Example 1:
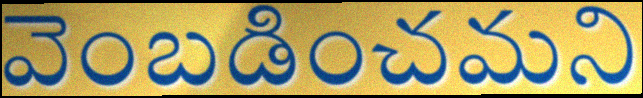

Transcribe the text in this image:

వెంబడించమని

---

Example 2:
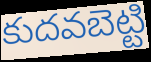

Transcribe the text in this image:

కుదవబెట్టి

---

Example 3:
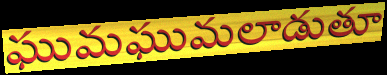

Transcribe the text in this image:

ఘుమఘుమలాడుతూ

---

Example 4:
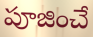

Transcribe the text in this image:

పూజించే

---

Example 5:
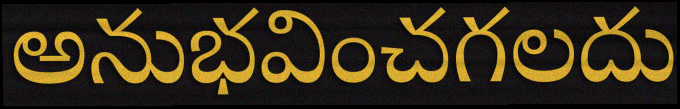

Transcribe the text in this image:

అనుభవించగలదు